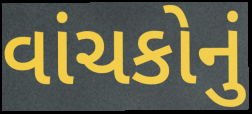
વાંચકોનું